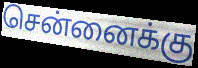
சென்னைக்கு